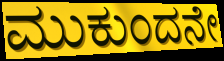
ಮುಕುಂದನೇ